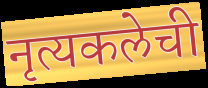
नृत्यकलेची